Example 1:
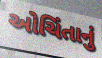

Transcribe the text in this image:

ઓચિંતાનું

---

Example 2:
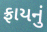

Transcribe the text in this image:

ફ્રાયનું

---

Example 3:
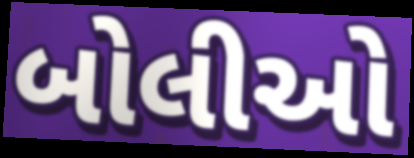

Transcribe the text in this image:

બોલીઓ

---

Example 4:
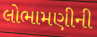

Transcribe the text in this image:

લોભામણીની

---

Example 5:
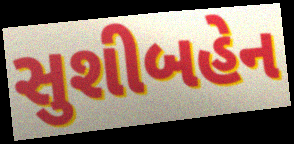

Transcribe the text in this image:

સુશીબહેન